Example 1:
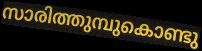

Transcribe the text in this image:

സാരിത്തുമ്പുകൊണ്ടു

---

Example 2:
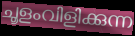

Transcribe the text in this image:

ചൂളംവിളിക്കുന്ന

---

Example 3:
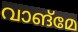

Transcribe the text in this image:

വാങ്മേ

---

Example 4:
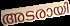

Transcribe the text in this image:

അടരായി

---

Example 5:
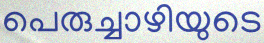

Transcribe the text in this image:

പെരുച്ചാഴിയുടെ